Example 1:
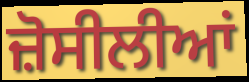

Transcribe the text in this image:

ਜ਼ੋਸੀਲੀਆਂ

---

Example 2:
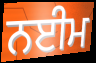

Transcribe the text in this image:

ਨਈਮ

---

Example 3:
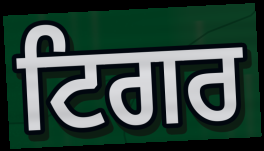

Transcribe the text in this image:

ਟਿਗਰ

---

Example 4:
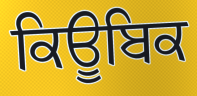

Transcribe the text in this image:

ਕਿਊਬਿਕ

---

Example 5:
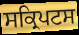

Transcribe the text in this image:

ਸਕ੍ਰਿਪਟਸ